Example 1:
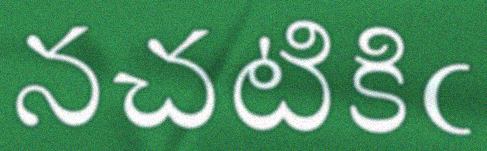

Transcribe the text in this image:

నచటికిఁ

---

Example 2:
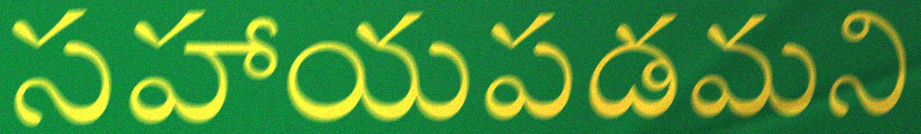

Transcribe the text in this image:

సహాయపడమని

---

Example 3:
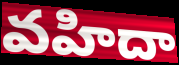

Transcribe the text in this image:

వహిదా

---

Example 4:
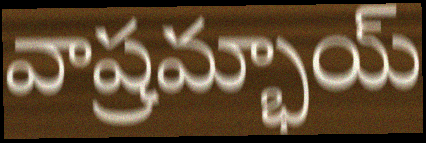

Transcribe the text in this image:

వాష్రమ్భాయ్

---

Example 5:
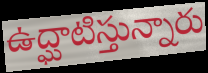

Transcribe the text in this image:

ఉద్ఘాటిస్తున్నారు